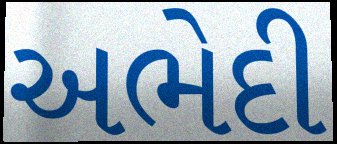
અભેદી